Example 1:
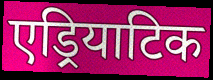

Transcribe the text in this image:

एड्रियाटिक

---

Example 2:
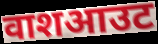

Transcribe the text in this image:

वाशआउट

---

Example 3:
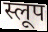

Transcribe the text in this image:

स्लूप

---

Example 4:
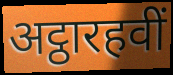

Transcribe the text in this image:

अट्ठारहवीं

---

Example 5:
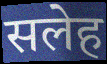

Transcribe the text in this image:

सलेह